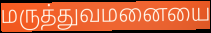
மருத்துவமனையை